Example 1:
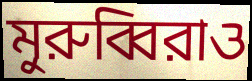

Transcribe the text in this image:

মুরুব্বিরাও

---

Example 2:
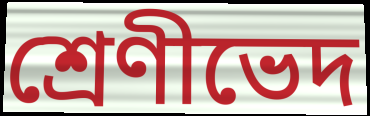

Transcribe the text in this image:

শ্রেণীভেদ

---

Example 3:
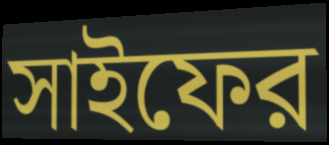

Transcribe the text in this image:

সাইফের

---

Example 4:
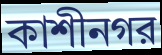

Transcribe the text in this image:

কাশীনগর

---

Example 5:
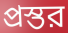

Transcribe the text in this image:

প্রস্তর